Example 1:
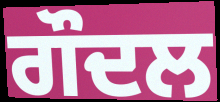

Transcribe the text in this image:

ਗੌਦਲ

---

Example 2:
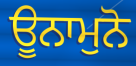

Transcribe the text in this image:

ਊਨਾਮੁਨੋ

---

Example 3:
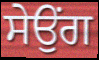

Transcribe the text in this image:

ਸੇਉਂਗ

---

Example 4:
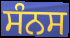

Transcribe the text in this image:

ਸੰਨਸ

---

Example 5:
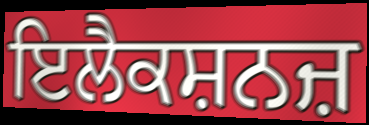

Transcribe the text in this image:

ਇਲੈਕਸ਼ਨਜ਼